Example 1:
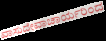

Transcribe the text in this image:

ವಾಸುದೇವಾಚಾರ್ಯರಿಂದ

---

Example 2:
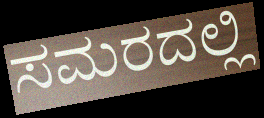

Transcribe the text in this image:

ಸಮರದಲ್ಲಿ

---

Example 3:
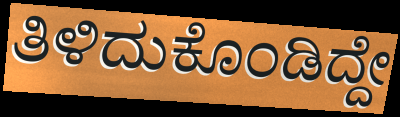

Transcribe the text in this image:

ತಿಳಿದುಕೊಂಡಿದ್ದೇ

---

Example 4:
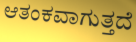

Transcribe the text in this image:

ಆತಂಕವಾಗುತ್ತದೆ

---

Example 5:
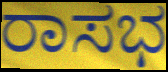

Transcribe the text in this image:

ರಾಸಭ